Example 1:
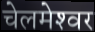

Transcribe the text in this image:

चेलमेश्‍वर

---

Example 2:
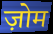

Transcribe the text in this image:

ज़ोम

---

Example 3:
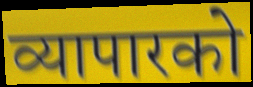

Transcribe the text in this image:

व्यापारको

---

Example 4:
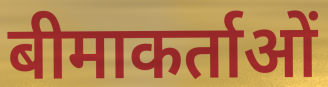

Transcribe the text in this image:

बीमाकर्ताओं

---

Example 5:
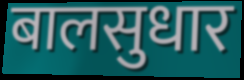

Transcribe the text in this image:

बालसुधार